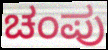
ಚಂಪು